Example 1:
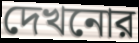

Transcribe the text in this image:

দেখনোর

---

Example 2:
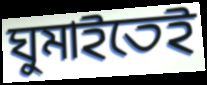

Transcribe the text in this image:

ঘুমাইতেই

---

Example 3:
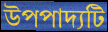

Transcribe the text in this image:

উপপাদ্যটি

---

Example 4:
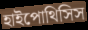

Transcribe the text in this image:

হাইপোথিসিস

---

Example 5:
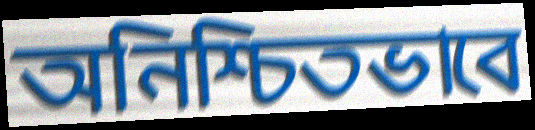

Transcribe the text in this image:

অনিশ্চিতভাবে